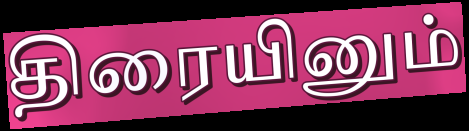
திரையினும்